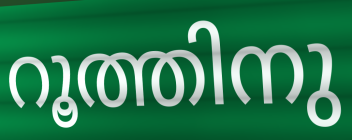
റൂത്തിനു